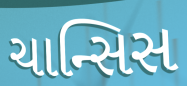
ચાન્સિસ